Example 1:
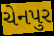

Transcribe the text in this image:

ચેનપુર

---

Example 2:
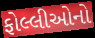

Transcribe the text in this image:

ફોલ્લીઓનો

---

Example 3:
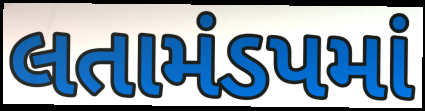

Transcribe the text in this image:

લતામંડપમાં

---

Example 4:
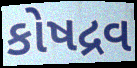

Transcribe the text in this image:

કોષદ્રવ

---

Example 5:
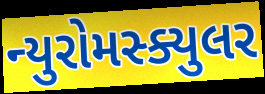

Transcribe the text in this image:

ન્યુરોમસ્ક્યુલર